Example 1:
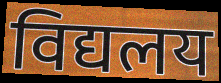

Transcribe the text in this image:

विद्यलय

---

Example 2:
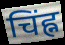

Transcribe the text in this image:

चिंह्न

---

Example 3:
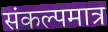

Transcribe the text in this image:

संकल्पमात्र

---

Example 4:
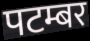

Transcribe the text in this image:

पटम्बर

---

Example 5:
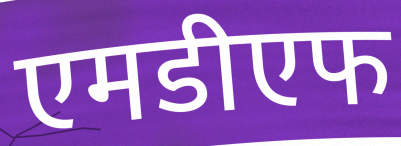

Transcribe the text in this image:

एमडीएफ